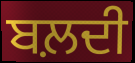
ਬਲ਼ਦੀ